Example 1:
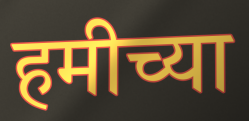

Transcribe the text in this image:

हमीच्या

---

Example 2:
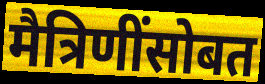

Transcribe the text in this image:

मैत्रिणींसोबत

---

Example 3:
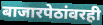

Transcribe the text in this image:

बाजारपेठांवरही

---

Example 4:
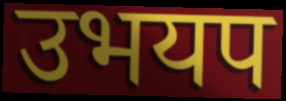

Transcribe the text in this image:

उभयप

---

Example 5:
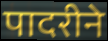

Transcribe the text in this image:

पादरीने